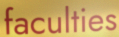
faculties